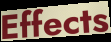
Effects